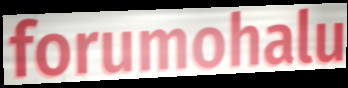
forumohalu